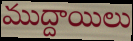
ముద్దాయిలు